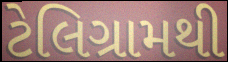
ટેલિગ્રામથી